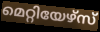
മെറ്റിയേഴ്സ്